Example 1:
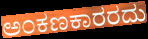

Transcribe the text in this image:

ಅಂಕಣಕಾರರದು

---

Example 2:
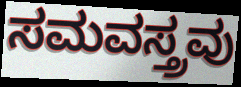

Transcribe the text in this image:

ಸಮವಸ್ತ್ರವು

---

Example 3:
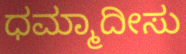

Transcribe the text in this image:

ಧಮ್ಮಾದೀಸು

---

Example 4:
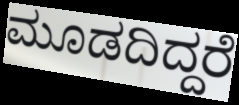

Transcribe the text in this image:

ಮೂಡದಿದ್ದರೆ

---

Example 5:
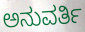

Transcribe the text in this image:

ಅನುವರ್ತಿ